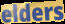
elders